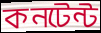
কনটেন্ট